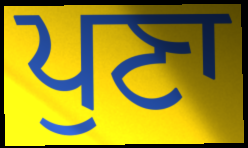
ਪੁਣਾ